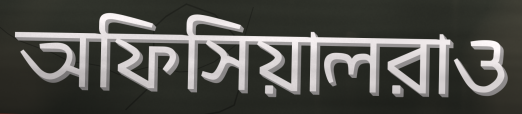
অফিসিয়ালরাও